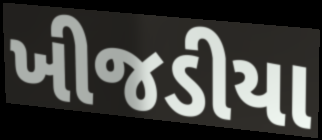
ખીજડીયા